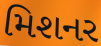
મિશનર